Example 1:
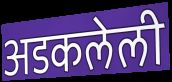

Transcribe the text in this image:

अडकलेली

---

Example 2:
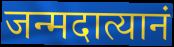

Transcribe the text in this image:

जन्मदात्यानं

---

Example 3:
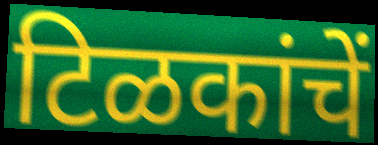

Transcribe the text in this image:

टिळकांचें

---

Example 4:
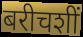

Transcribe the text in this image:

बरीचशीं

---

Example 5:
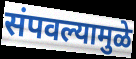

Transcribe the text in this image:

संपवल्यामुळे